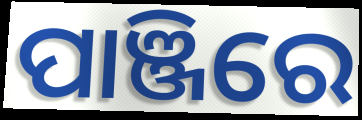
ପାଞ୍ଜିରେ